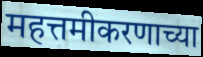
महत्तमीकरणाच्या